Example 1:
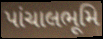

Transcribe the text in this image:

પાંચાલભૂમિ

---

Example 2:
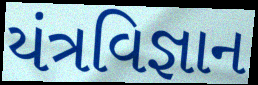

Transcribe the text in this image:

યંત્રવિજ્ઞાન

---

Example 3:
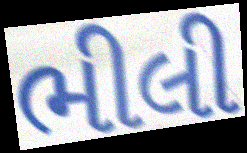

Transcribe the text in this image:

ભીલી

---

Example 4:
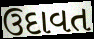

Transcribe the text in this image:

ઉદાવત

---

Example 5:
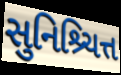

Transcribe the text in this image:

સુનિશ્ર્ચિત્ત